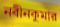
নবীনকুমার